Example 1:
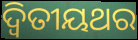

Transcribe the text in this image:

ଦ୍ବିତୀୟଥର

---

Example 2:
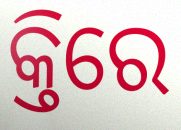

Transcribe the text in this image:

କ୍ତିରେ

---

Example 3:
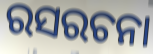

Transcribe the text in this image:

ରସରଚନା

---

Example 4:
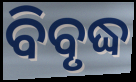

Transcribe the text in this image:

ବିବୃଦ୍ଧ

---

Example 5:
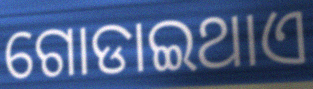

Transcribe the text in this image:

ଗୋଡାଇଥାଏ